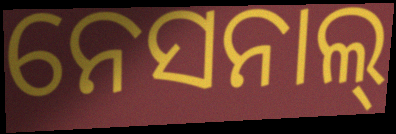
ନେସନାଲ୍